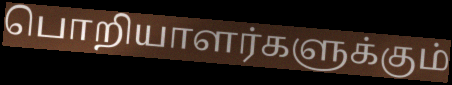
பொறியாளர்களுக்கும்